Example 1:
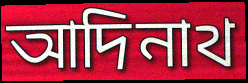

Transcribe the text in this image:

আদিনাথ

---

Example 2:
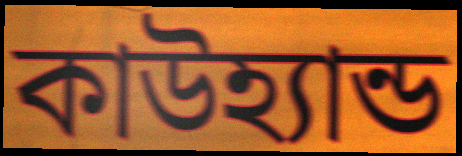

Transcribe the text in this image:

কাউহ্যান্ড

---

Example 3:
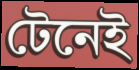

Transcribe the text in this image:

টেনেই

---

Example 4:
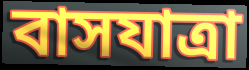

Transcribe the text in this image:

বাসযাত্রা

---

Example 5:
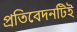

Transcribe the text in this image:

প্রতিবেদনটিই